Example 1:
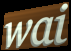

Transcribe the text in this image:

wai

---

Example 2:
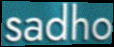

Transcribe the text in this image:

sadho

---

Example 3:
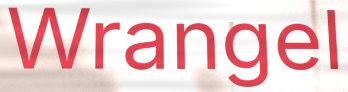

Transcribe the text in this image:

Wrangel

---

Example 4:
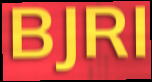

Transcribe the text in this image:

BJRI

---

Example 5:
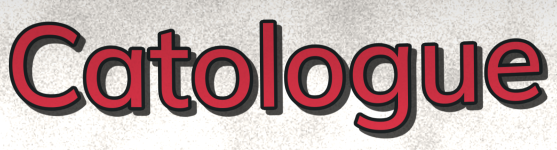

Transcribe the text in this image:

Catologue